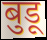
बुडू